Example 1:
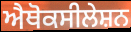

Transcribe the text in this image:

ਐਥੋਕਸੀਲੇਸ਼ਨ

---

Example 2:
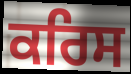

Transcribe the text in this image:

ਕਰਿਸ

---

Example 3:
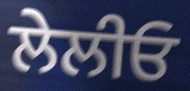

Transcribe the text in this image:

ਲੇਲੀਓ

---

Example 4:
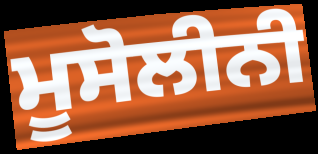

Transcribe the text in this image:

ਮੂਸੋਲੀਨੀ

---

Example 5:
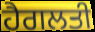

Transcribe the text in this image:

ਹੈਗਲਤੀ